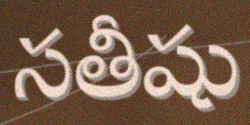
సతీషు